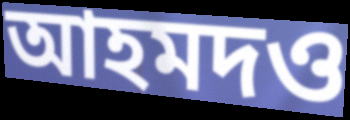
আহমদও